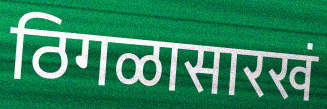
ठिगळासारखं